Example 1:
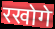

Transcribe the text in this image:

रखोगे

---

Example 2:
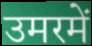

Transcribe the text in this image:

उमरमें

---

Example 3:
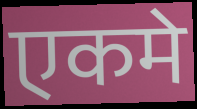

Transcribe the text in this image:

एकमे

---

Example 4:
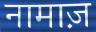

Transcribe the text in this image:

नामाज़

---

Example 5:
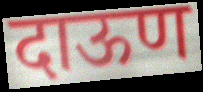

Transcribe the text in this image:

दाऊण